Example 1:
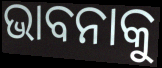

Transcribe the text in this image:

ଭାବନାକୁ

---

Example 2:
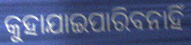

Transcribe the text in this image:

କୁହାଯାଇପାରିବନାହିଁ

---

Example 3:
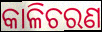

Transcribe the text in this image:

କାଳିଚରଣ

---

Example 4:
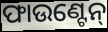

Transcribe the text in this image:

ଫାଉଣ୍ଟେନ୍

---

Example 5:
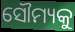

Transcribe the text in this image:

ସୌମ୍ୟକୁ